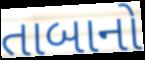
તાબાનો